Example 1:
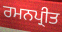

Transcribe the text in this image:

ਰਮਨਪ੍ਰੀਤ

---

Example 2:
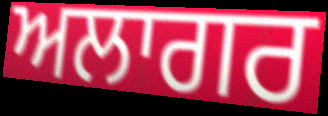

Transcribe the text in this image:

ਅਲਾਗਰ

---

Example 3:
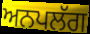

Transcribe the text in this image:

ਅਨਪਲੱਗ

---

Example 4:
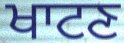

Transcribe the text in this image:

ਖਾਟਣ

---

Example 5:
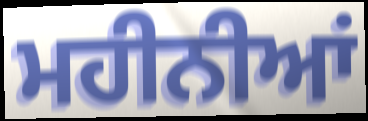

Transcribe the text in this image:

ਮਹੀਨੀਆਂ